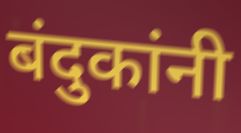
बंदुकांनी